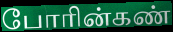
போரின்கண்